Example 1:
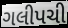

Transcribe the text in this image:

ગલીપચી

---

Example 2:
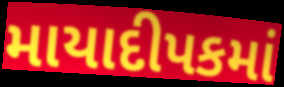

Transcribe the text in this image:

માયાદીપકમાં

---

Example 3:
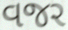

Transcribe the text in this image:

વજર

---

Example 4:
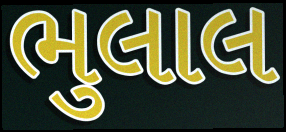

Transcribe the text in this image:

ભુલાલ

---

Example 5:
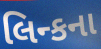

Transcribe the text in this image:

લિન્કના